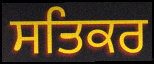
ਸਤਿਕਰ